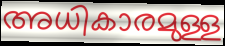
അധികാരമുള്ള